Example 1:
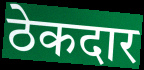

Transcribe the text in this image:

ठेकदार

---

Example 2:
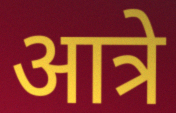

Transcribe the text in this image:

आत्रे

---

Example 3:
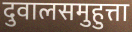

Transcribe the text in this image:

दुवालसमुहुत्ता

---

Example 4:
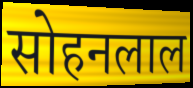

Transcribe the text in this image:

सोहनलाल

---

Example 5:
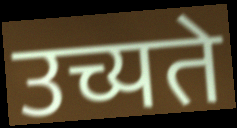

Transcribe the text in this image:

उच्यते